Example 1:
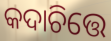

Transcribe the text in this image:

କଦାଚିତ୍ତେ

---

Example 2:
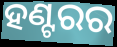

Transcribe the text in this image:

ହଣ୍ଟରର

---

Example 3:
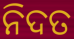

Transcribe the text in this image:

ନିଦତ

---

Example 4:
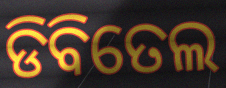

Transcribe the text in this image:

ଡିବିତେଲ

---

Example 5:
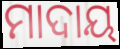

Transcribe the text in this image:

ମାଦାୟ